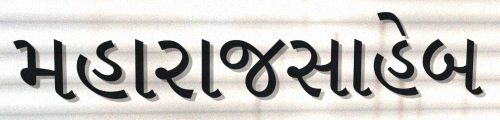
મહારાજસાહેબ